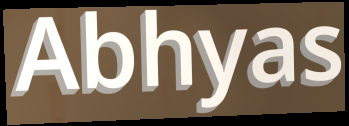
Abhyas